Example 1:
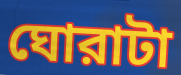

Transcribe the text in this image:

ঘোরাটা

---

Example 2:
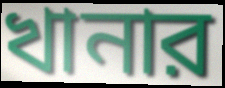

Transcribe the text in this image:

খানার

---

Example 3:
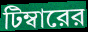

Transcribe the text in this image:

টিম্বারের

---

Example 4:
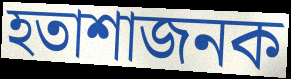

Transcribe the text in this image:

হতাশাজনক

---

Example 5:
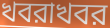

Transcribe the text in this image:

খবরাখবর